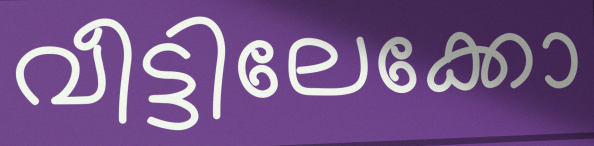
വീട്ടിലേക്കോ